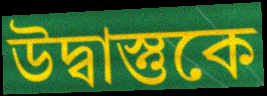
উদ্বাস্তুকে